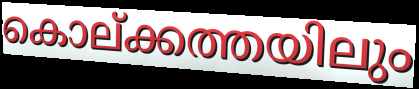
കൊല്ക്കത്തയിലും